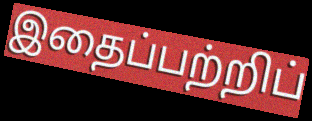
இதைப்பற்றிப்